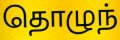
தொழுந்